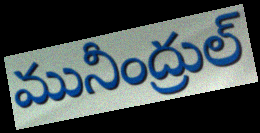
మునీంద్రుల్